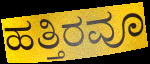
ಹತ್ತಿರವೂ